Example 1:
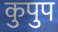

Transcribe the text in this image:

कुपुप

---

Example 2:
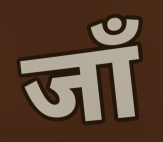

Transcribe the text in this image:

जाँ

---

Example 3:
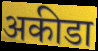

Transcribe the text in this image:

अकीडा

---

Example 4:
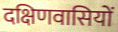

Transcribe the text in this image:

दक्षिणवासियों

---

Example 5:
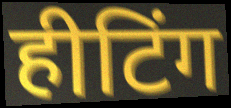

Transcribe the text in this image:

हीटिंग